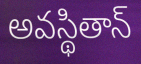
అవస్థితాన్